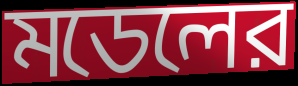
মডেলের